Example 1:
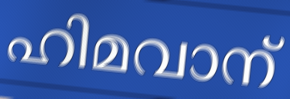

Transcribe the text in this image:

ഹിമവാന്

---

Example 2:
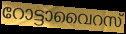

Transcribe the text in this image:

റോട്ടാവൈറസ്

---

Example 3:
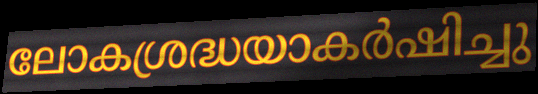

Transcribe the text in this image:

ലോകശ്രദ്ധയാകർഷിച്ചു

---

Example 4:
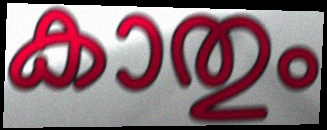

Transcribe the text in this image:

കാതും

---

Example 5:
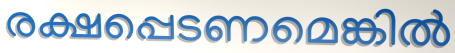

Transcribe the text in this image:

രക്ഷപ്പെടണമെങ്കിൽ